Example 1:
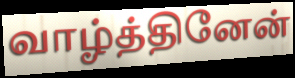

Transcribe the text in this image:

வாழ்த்தினேன்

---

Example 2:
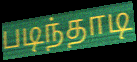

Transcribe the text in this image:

படிந்தாடி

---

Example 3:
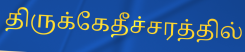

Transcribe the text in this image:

திருக்கேதீச்சரத்தில்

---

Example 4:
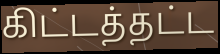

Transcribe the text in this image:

கிட்டத்தட்ட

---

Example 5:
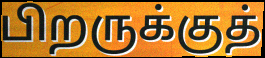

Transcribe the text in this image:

பிறருக்குத்